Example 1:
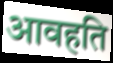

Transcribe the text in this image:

आवहति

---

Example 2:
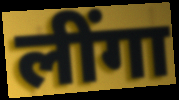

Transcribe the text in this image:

लींगा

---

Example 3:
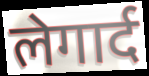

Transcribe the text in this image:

लेगार्द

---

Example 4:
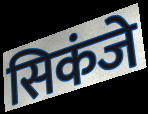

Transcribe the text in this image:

सिकंजे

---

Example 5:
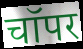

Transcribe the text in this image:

चॉपर